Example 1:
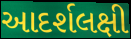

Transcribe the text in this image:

આદર્શલક્ષી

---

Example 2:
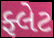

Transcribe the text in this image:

ફ્લેટ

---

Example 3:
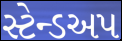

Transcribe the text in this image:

સ્ટેન્ડઅપ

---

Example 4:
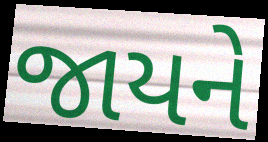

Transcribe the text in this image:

જાયને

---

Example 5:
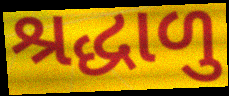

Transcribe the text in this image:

શ્રદ્ધાળુ